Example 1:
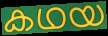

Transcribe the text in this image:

കഥയ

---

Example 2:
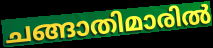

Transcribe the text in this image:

ചങ്ങാതിമാരിൽ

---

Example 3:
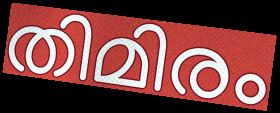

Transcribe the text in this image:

തിമിരം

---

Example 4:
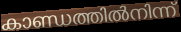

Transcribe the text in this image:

കാണ്ഡത്തിൽനിന്ന്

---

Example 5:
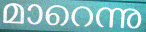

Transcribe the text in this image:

മാറെന്നു